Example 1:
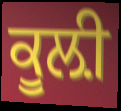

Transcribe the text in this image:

ਕੂਲ਼ੀ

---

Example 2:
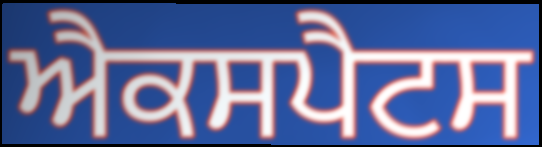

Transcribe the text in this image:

ਐਕਸਪੈਟਸ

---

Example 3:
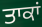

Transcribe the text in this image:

ਤਾਕਾਂ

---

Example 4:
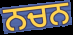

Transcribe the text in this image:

ਨਚਨ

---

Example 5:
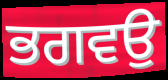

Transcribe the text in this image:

ਭਗਵਉ